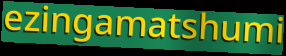
ezingamatshumi